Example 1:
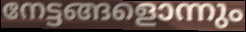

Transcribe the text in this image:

നേട്ടങ്ങളൊന്നും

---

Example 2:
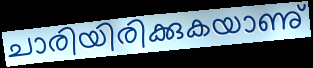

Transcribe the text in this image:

ചാരിയിരിക്കുകയാണു്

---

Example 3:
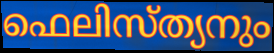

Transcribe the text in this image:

ഫെലിസ്ത്യനും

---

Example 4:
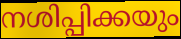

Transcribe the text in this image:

നശിപ്പിക്കയും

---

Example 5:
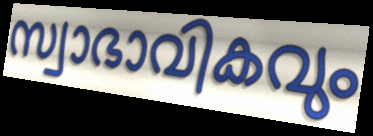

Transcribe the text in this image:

സ്വാഭാവികവും